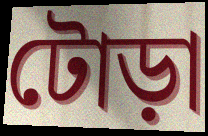
টোড়া